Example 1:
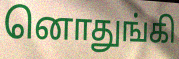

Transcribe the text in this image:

னொதுங்கி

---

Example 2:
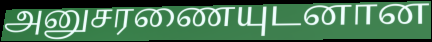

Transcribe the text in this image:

அனுசரணையுடனான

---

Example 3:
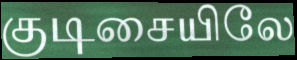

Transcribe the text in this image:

குடிசையிலே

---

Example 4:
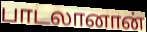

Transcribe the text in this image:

பாடலானான்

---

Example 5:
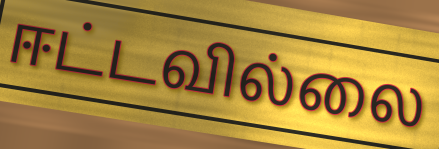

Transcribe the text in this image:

ஈட்டவில்லை